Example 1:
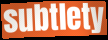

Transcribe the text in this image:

subtlety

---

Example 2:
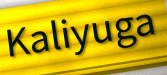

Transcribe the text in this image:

Kaliyuga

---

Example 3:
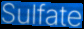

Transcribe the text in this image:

Sulfate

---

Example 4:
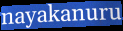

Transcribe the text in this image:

nayakanuru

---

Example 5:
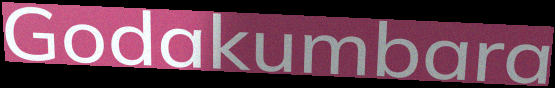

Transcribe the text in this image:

Godakumbara